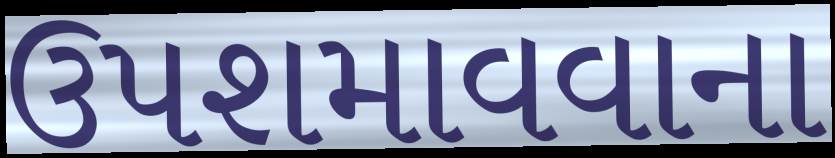
ઉપશમાવવાના